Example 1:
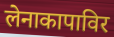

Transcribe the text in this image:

लेनाकापाविर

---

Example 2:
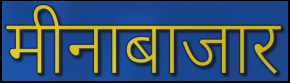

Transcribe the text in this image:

मीनाबाजार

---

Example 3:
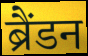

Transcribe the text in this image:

ब्रैंडन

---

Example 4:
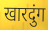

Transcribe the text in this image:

खारदुंग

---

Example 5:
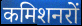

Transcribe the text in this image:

कमिशनरों